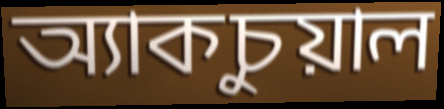
অ্যাকচুয়াল